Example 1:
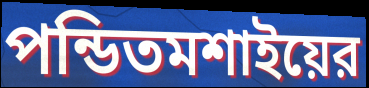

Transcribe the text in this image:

পন্ডিতমশাইয়ের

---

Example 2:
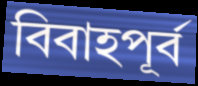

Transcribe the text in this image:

বিবাহপূর্ব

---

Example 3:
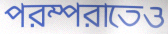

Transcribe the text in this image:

পরম্পরাতেও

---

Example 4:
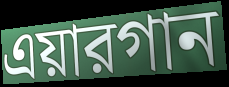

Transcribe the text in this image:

এয়ারগান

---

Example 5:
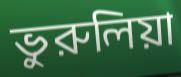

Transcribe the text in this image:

ভুরুলিয়া